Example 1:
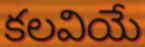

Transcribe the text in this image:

కలవియే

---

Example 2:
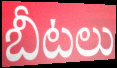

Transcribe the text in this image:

బీటలు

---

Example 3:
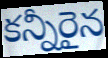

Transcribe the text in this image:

కన్నీరైన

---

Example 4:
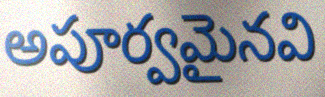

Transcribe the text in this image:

అపూర్వమైనవి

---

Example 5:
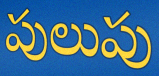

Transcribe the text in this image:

పులుపు